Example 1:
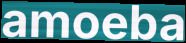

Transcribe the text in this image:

amoeba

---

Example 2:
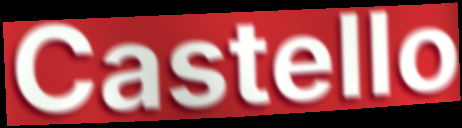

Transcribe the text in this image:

Castello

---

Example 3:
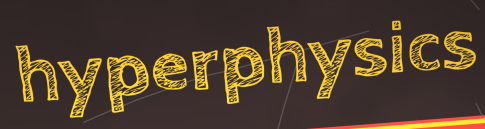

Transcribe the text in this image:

hyperphysics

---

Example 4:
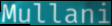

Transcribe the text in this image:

Mullani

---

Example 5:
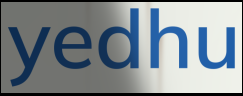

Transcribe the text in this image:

yedhu